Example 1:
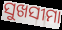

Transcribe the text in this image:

ସୁଖସୀମା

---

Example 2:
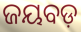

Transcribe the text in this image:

ଜୟବଡ଼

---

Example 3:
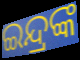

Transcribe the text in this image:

ଇନ୍ଦ୍ରଙ୍କ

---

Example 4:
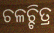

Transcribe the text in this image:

ଚଳଚ୍ଚିତ୍ର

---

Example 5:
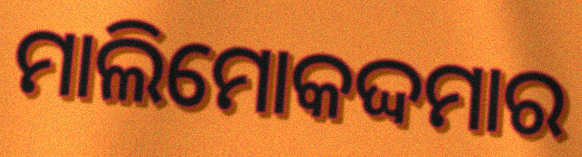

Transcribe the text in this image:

ମାଲିମୋକଦ୍ଦମାର